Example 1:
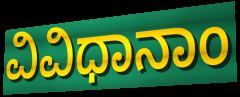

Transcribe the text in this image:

ವಿವಿಧಾನಾಂ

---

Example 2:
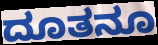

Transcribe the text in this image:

ದೂತನೂ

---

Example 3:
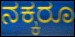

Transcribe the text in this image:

ನಕ್ಕರೂ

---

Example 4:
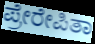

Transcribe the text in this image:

ಪ್ರೇರೇಪಿತಾ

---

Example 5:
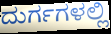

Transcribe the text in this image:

ದುರ್ಗಗಳಲ್ಲಿ